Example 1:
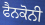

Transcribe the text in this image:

ਫੈਨਕੋਨੀ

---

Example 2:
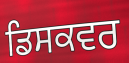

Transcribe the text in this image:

ਡਿਸਕਵਰ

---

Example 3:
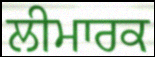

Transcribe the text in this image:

ਲੀਮਾਰਕ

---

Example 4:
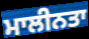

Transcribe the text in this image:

ਮਾਲੀਨਤਾ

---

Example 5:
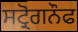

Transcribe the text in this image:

ਸਟ੍ਰੋਗਨੌਫ